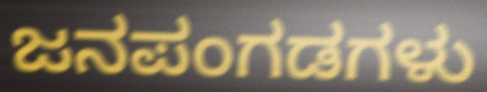
ಜನಪಂಗಡಗಳು